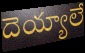
దెయ్యాలే